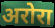
अरोरा